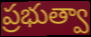
ప్రభుత్వా